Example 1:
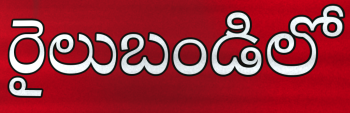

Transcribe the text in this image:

రైలుబండిలో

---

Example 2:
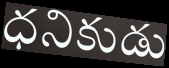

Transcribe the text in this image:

ధనికుడు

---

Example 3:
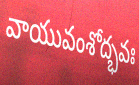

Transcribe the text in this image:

వాయువంశోద్భవః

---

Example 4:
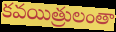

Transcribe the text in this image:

కవయిత్రులంతా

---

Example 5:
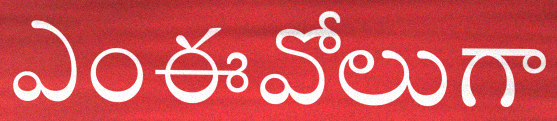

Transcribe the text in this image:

ఎంఈవోలుగా